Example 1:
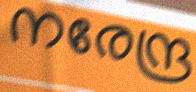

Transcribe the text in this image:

നരേന്ദ്ര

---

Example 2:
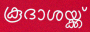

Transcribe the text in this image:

കൂദാശയ്ക്ക്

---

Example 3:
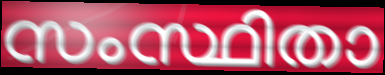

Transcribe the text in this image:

സംസ്ഥിതാ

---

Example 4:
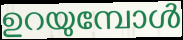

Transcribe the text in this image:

ഉറയുമ്പോൾ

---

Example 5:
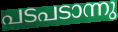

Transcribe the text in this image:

പടപടാന്നു